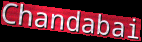
Chandabai